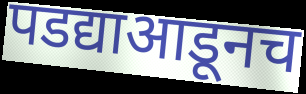
पडद्याआडूनच